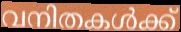
വനിതകൾക്ക്